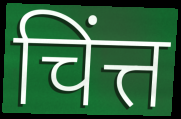
चिंत्त